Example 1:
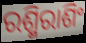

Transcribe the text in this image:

ରଶ୍ମିରାଶିଂ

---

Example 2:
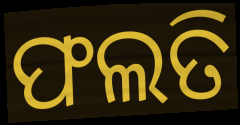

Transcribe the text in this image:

ଫଲତି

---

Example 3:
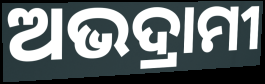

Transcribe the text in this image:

ଅଭଦ୍ରାମୀ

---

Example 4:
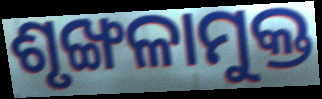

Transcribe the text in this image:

ଶୃଙ୍ଖଳାମୁକ୍ତ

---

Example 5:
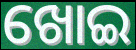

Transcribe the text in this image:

ଖୋଇ